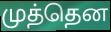
முத்தென